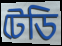
টেডি